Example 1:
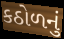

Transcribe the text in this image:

કઠોળનું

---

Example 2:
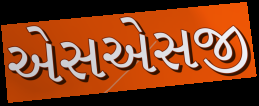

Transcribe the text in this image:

એસએસજી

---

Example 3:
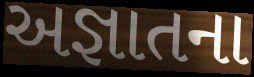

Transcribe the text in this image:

અજ્ઞાતના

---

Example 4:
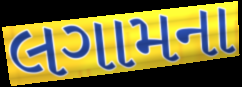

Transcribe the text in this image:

લગામના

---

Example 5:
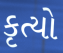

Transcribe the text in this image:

કૃત્યો